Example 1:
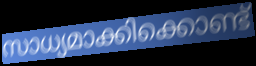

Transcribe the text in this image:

സാധ്യമാക്കിക്കൊണ്ട്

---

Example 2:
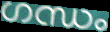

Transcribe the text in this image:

ഗന്ധം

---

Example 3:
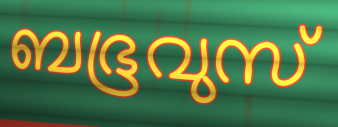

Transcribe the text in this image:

ബഭൂവുസ്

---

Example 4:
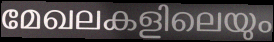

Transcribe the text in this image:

മേഖലകളിലെയും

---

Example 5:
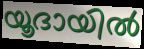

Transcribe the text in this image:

യൂദായിൽ